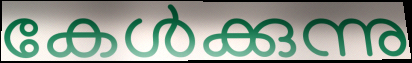
കേൾക്കുന്നു